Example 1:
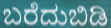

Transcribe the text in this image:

ಬರೆದುಬಿಡಿ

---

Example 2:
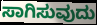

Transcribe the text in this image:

ಸಾಗಿಸುವುದು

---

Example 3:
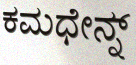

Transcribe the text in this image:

ಕಮಧೇನ್ನ್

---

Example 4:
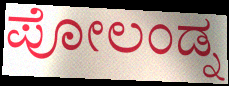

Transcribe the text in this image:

ಪೋಲಂಡ್ನ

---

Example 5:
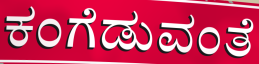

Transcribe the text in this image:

ಕಂಗೆಡುವಂತೆ